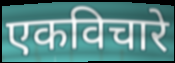
एकविचारे